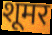
शूमर